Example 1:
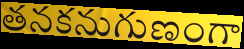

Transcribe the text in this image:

తనకనుగుణంగా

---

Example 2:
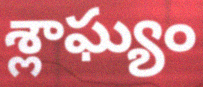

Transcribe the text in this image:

శ్లాఘ్యం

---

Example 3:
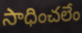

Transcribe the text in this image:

సాధించలేం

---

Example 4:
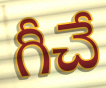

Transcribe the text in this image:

గీచే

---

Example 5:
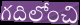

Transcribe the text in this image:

గదిలోంచి